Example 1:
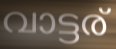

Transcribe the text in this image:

വാട്ടര്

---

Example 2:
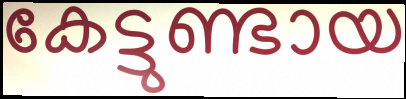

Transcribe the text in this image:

കേട്ടുണ്ടായ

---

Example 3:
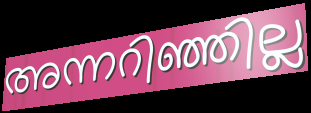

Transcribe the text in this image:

അന്നറിഞ്ഞില്ല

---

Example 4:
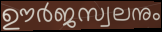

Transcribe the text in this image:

ഊർജസ്വലനും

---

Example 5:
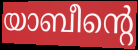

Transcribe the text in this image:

യാബീന്റെ